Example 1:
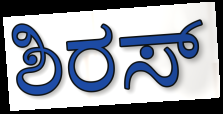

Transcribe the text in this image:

ಶಿರಸ್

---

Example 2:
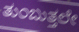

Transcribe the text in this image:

ತುಂಬುತ್ತಲೇ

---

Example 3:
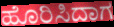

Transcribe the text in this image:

ಹೊರಿಸಿದಾಗ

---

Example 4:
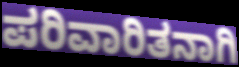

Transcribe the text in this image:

ಪರಿವಾರಿತನಾಗಿ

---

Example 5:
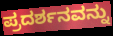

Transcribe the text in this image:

ಪ್ರದರ್ಶನವನ್ನು